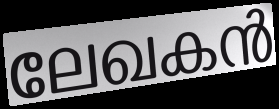
ലേഖകൻ